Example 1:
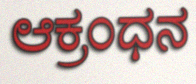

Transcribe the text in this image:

ಆಕ್ರಂಧನ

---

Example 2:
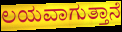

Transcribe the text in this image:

ಲಯವಾಗುತ್ತಾನೆ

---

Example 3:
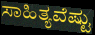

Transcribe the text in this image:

ಸಾಹಿತ್ಯವೆಷ್ಟು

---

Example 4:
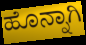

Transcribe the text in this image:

ಹೊನ್ನಾಗಿ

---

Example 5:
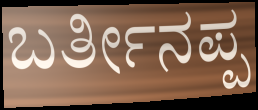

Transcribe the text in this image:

ಬರ್ತೀನಪ್ಪ